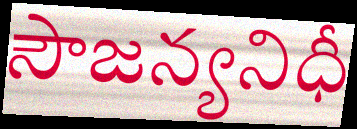
సౌజన్యనిధీ